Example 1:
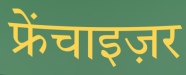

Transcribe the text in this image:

फ्रेंचाइज़र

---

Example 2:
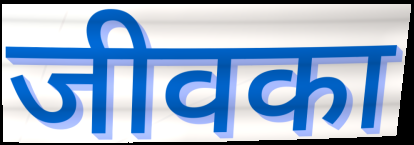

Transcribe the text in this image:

जीवका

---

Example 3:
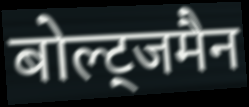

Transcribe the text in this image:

बोल्ट्जमैन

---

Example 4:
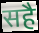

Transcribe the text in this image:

सहै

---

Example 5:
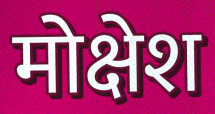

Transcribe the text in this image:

मोक्षेश